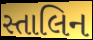
સ્તાલિન